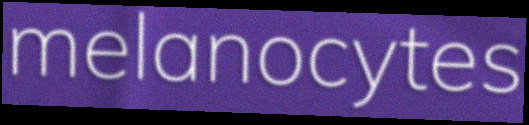
melanocytes